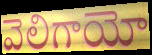
వెలిగాయో